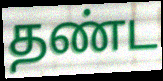
தண்ட